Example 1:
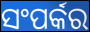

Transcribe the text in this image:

ସଂପର୍କର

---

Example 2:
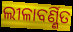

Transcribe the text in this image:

ଲୀଳାବର୍ଣ୍ଣିତ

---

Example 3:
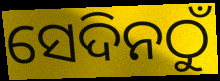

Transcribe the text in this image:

ସେଦିନଠୁଁ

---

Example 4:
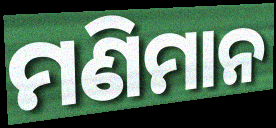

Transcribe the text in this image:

ମଣିମାନ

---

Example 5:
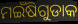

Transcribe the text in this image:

ମଇଁଷିଗୁଡାକ